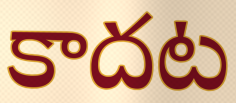
కాదట